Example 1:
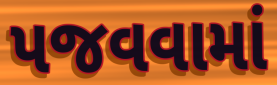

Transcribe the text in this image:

પજવવામાં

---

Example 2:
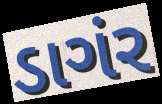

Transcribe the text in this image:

ડાગંર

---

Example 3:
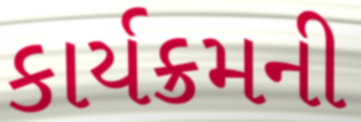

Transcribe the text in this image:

કાર્યક્રમની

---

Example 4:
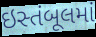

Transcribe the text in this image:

ઇસ્તંબૂલમાં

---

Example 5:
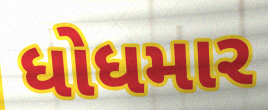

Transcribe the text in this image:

ધોધમાર